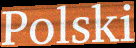
Polski